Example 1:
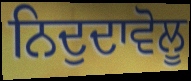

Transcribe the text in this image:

ਨਿਦੁਦਾਵੋਲੂ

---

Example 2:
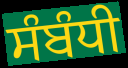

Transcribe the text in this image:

ਸੰਬੰਧੀ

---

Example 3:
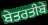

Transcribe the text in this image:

ਬੇਤਰਤੀਬੇ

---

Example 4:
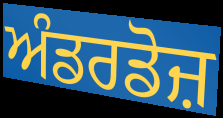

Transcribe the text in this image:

ਅੰਡਰਡੋਜ਼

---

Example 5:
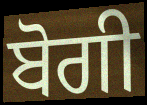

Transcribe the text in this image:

ਬੋਗੀ